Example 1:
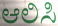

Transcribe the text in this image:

ಆಲಿಸಿ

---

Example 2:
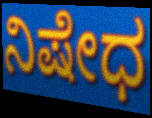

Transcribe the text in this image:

ನಿಷೇಧ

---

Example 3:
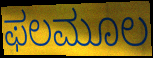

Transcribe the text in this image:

ಫಲಮೂಲ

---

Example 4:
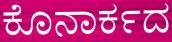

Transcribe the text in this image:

ಕೊನಾರ್ಕದ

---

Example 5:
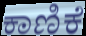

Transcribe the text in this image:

ಕಾಣಿಕೆ